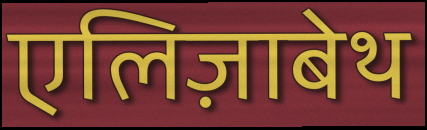
एलिज़ाबेथ